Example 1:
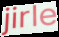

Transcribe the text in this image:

jirle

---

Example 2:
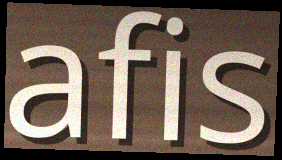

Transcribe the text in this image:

afis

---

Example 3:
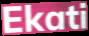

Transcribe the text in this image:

Ekati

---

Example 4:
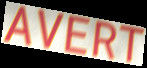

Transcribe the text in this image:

AVERT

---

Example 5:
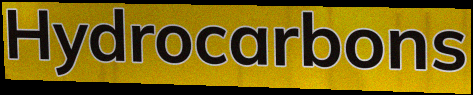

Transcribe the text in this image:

Hydrocarbons